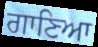
ਗਾਣਿਆ